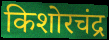
किशोरचंद्र